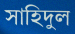
সাহিদুল